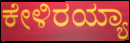
ಕೇಳಿರಯ್ಯಾ